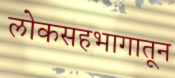
लोकसहभागातून